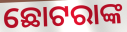
ଛୋଟରାଙ୍କ